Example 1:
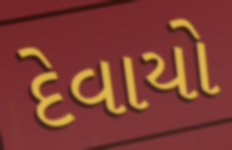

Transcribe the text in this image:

દેવાયો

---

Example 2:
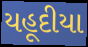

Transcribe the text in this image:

યહૂદીયા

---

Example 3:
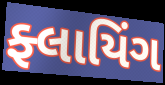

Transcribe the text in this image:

ફ્લાયિંગ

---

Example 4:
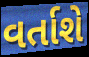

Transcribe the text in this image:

વર્તાશે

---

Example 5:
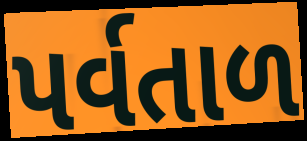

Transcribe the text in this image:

પર્વતાળ